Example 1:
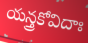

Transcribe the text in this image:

యన్త్రకోవిదాః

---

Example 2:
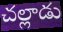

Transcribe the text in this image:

చల్లాడు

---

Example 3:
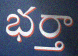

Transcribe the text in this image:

భర్తా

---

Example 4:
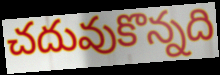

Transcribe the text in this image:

చదువుకొన్నది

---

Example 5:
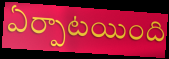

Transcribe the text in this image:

ఏర్పాటయింది